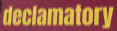
declamatory